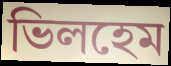
ভিলহেম